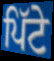
ਪਿੱਟੇ